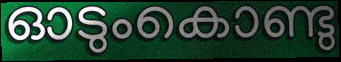
ഓടുംകൊണ്ടു